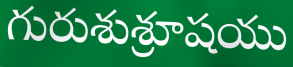
గురుశుశ్రూషయు